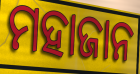
ମହାଜାନ